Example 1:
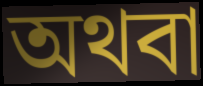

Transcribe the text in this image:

অথবা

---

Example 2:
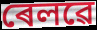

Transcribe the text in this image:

ৰেলৱে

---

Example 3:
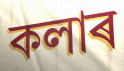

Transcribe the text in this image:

কলাৰ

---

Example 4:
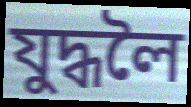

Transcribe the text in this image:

যুদ্ধলৈ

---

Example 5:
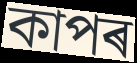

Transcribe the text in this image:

কাপৰ